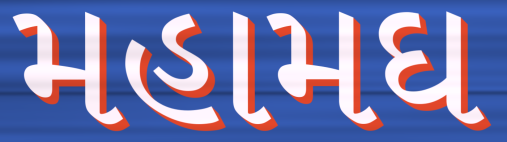
મહામઘ